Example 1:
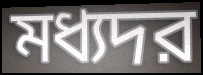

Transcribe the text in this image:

মধ্যদর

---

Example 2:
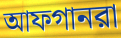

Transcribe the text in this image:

আফগানরা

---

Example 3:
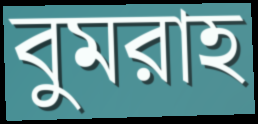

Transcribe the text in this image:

বুমরাহ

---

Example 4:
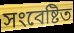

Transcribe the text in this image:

সংবেষ্টিত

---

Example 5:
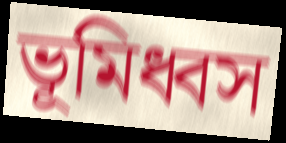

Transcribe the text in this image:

ভূমিধ্বস